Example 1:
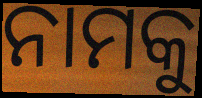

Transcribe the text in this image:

ନାମକୁ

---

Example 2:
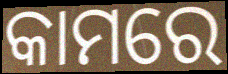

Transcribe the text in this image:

କାମରେ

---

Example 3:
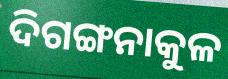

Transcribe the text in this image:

ଦିଗଙ୍ଗନାକୁଳ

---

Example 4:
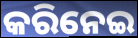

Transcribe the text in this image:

କରିନେଇ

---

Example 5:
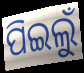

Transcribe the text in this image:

ପିଇଲୁଁ